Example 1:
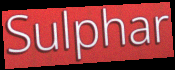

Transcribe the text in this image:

Sulphar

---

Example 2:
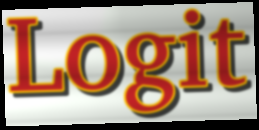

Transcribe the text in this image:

Logit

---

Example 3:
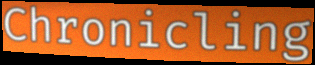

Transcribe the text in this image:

Chronicling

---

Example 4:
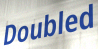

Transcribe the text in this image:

Doubled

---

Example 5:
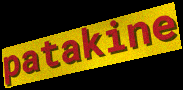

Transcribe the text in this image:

patakine